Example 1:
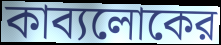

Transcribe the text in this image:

কাব্যলোকের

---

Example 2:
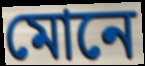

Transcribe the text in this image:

মোনে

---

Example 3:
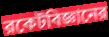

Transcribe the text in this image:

রকেটবিজ্ঞানের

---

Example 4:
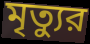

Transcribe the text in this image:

মৃত্যুর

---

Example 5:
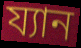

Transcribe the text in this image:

য্যান